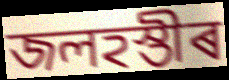
জলহস্তীৰ